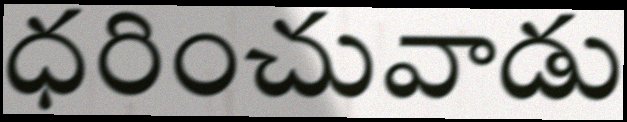
ధరించువాడు